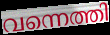
വന്നെത്തി